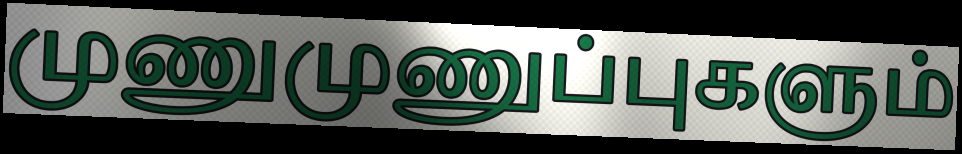
முணுமுணுப்புகளும்